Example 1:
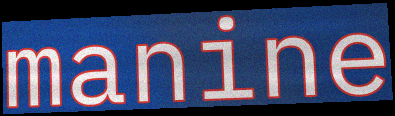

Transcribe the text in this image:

manine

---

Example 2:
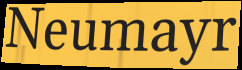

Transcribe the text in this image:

Neumayr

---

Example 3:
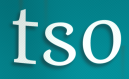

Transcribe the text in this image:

tso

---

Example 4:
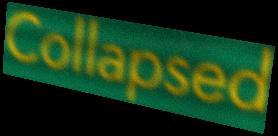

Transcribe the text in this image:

Collapsed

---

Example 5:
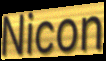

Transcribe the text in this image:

Nicon